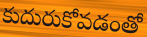
కుదురుకోవడంతో